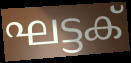
ഘട്ടക്